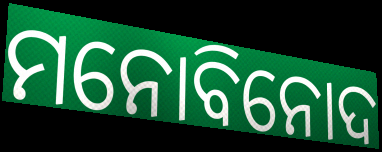
ମନୋବିନୋଦ